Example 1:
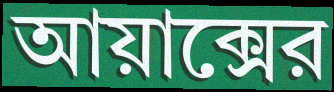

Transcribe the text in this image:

আয়াক্সের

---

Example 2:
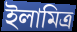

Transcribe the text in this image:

ইলামিত্র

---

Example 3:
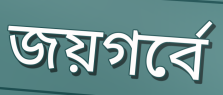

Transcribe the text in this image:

জয়গর্বে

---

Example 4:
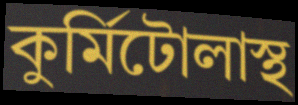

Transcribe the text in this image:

কুর্মিটোলাস্থ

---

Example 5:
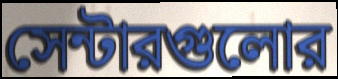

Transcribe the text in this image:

সেন্টারগুলোর